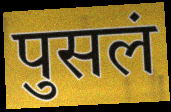
पुसलं